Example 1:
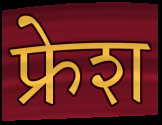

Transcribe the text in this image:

फ्रेश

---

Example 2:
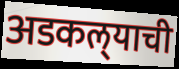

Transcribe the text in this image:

अडकल्याची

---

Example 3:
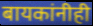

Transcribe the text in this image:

बायकांनीही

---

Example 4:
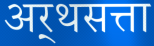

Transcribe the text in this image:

अर्थसत्ता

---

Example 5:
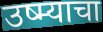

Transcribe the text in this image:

उष्म्याचा